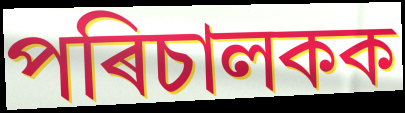
পৰিচালকক